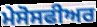
ਮੇਸੋਸਫੀਅਰ